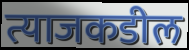
त्याजकडील